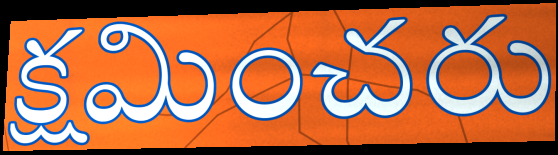
క్షమించరు